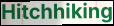
Hitchhiking